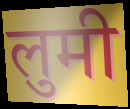
लुमी